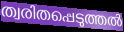
ത്വരിതപ്പെടുത്തൽ